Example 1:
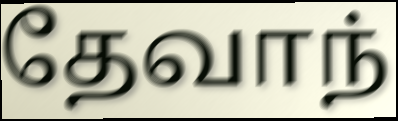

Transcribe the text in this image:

தேவாந்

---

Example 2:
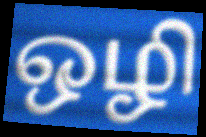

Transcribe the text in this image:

ஒழி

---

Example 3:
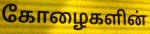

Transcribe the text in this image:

கோழைகளின்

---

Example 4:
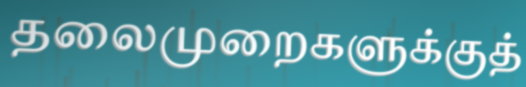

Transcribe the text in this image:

தலைமுறைகளுக்குத்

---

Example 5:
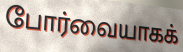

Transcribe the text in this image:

போர்வையாகக்